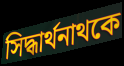
সিদ্ধার্থনাথকে